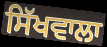
ਸਿੱਖਵਾਲਾ